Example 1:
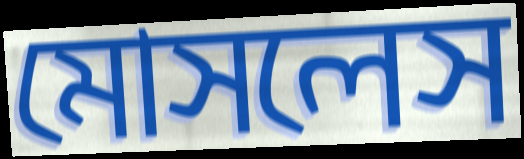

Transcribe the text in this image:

মোসলেস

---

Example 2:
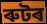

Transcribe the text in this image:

ৰুটৰ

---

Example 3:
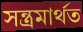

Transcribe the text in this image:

সন্ত্ৰমাৰ্থত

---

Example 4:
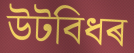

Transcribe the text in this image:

উটবিধৰ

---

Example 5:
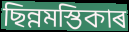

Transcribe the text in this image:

ছিন্নমস্তিকাৰ